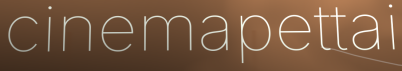
cinemapettai